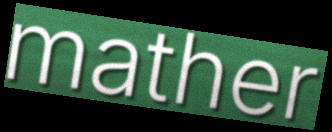
mather